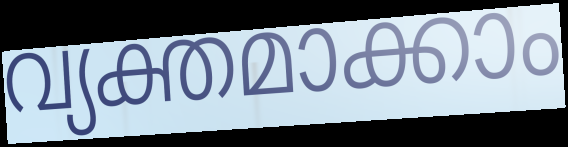
വ്യക്തമാക്കാം